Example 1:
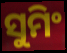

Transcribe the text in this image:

ସୁମିଂ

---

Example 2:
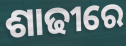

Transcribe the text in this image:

ଶାଢୀରେ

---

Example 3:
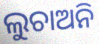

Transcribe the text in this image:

ଲୁଚାଅନି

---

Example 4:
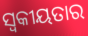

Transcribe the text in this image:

ସ୍ୱକୀୟତାର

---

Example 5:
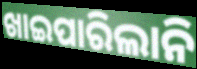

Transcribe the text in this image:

ଖାଇପାରିଲାନି